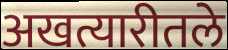
अखत्यारीतले